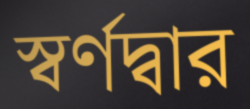
স্বর্ণদ্বার